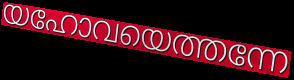
യഹോവയെത്തന്നേ